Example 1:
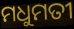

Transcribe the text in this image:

ମଧୁମତୀ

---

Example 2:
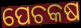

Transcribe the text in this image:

ପେଚକଷ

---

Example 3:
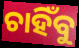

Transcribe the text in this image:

ଚାହିଁବୁ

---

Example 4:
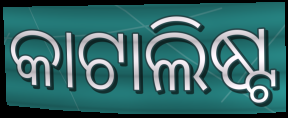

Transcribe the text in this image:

କାଟାଲିଷ୍ଟ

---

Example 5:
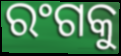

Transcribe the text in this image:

ରଂଗକୁ